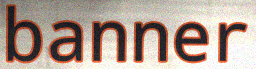
banner